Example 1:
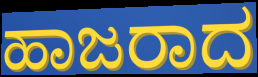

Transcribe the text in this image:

ಹಾಜರಾದ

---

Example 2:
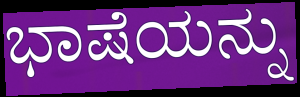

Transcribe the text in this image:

ಭಾಷೆಯನ್ನು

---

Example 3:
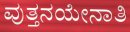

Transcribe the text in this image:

ವುತ್ತನಯೇನಾತಿ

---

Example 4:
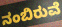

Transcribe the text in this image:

ನಂಬಿರುವೆ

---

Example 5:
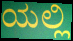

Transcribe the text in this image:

ಯಲ್ಲಿ